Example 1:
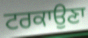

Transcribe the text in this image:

ਟਰਕਾਉਣਾ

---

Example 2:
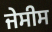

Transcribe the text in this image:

ਜੇਸੀਸ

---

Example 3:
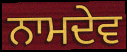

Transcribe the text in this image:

ਨਾਮਦੇਵ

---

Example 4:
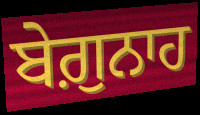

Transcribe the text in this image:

ਬੇਗ਼ੁਨਾਹ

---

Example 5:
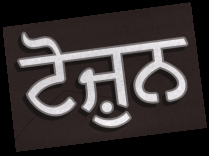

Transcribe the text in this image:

ਟੋਜ਼ੁਨ